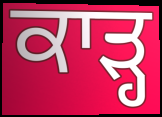
ਕਾੜ੍ਹ